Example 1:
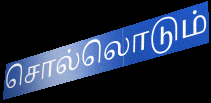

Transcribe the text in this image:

சொல்லொடும்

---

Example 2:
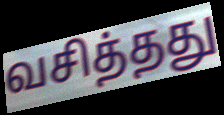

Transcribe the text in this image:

வசித்தது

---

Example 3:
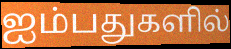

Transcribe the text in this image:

ஐம்பதுகளில்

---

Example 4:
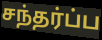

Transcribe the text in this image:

சந்தர்ப்ப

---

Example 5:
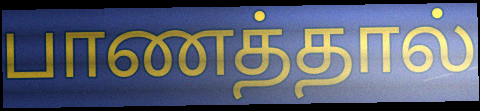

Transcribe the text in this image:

பாணத்தால்